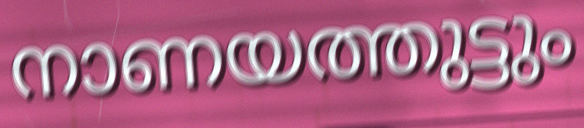
നാണയത്തുട്ടും